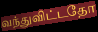
வந்துவிட்டதோ